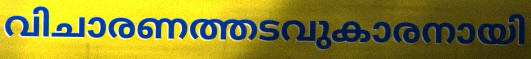
വിചാരണത്തടവുകാരനായി